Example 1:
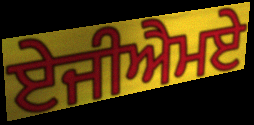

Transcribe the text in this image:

ਏਜੀਐਮਏ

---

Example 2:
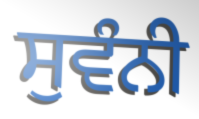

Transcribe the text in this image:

ਸੁਵੰਨੀ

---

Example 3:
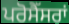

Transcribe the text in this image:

ਪਰੋਸੈੱਸਰਾਂ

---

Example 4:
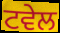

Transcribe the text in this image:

ਟਵੇਲ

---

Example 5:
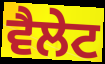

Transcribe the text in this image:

ਵੈਲੇਟ